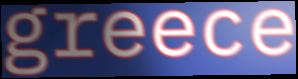
greece